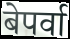
बेपर्वा